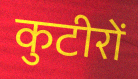
कुटीरों